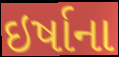
ઇર્ષાના